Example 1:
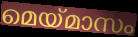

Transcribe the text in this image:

മെയ്മാസം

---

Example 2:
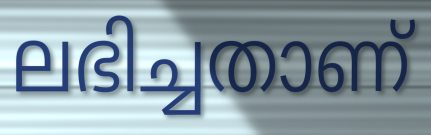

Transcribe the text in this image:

ലഭിച്ചതാണ്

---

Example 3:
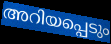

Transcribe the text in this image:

അറിയപ്പെടും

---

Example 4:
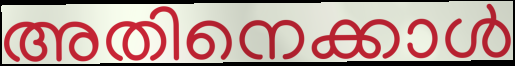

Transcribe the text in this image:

അതിനെക്കാൾ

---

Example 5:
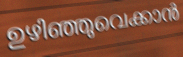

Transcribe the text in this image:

ഉഴിഞ്ഞുവെക്കാൻ